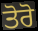
ਤੋਰੋ